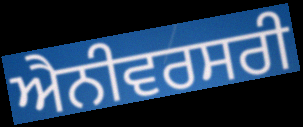
ਐਨੀਵਰਸਰੀ